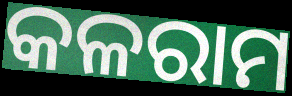
କଳରାମ